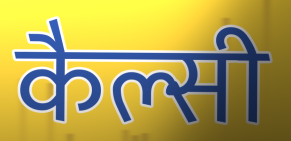
कैल्सी